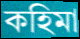
কহিমা